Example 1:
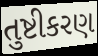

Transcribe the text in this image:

તુષ્ટીકરણ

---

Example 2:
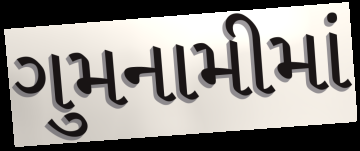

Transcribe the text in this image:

ગુમનામીમાં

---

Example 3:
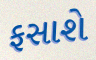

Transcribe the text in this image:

ફસાશે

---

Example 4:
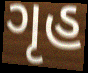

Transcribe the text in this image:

ગૃહ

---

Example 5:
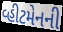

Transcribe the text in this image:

વ્હીટમેનની